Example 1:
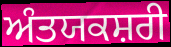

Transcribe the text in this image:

ਅੰਤਯਕਸ਼ਰੀ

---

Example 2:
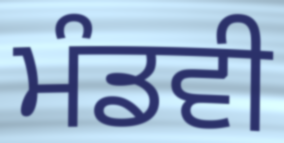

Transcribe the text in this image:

ਮੰਡਵੀ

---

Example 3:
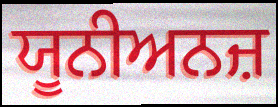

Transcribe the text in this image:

ਯੂਨੀਅਨਜ਼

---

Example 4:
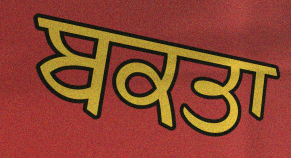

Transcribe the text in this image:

ਬਕਤਾ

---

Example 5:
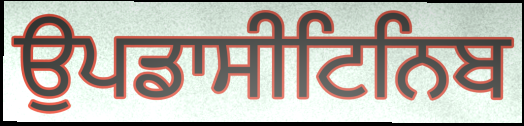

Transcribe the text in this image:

ਉਪਡਾਸੀਟਿਨਿਬ